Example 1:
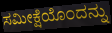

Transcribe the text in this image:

ಸಮೀಕ್ಷೆಯೊಂದನ್ನು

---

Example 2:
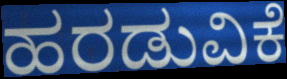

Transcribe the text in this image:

ಹರಡುವಿಕೆ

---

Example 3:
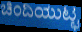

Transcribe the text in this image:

ಚಿಂದಿಯುಟ್ಟ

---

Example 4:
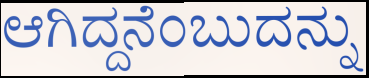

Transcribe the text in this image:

ಆಗಿದ್ದನೆಂಬುದನ್ನು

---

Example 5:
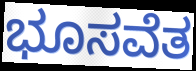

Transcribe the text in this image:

ಭೂಸವೆತ